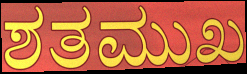
ಶತಮುಖ